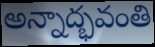
అన్నాద్భవంతి